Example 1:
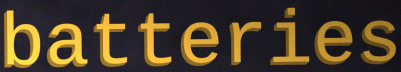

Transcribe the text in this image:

batteries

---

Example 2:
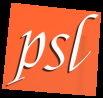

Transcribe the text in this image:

psl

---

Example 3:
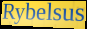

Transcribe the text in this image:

Rybelsus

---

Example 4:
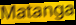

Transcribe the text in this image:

Matanga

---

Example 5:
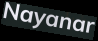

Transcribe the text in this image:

Nayanar